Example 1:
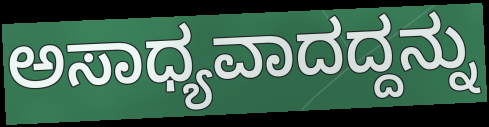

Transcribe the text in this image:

ಅಸಾಧ್ಯವಾದದ್ದನ್ನು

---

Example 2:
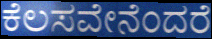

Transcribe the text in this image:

ಕೆಲಸವೇನೆಂದರೆ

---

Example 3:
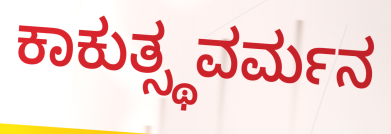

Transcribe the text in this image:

ಕಾಕುತ್ಸ್ಥವರ್ಮನ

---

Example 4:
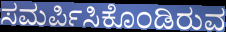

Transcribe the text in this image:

ಸಮರ್ಪಿಸಿಕೊಂಡಿರುವ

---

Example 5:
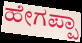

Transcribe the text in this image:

ಹೇಗಪ್ಪಾ